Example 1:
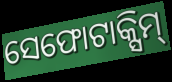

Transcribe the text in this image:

ସେଫୋଟାକ୍ସିମ୍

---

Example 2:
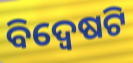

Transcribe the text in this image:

ବିଦ୍ୱେଷଟି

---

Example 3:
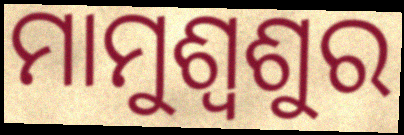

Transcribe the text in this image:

ମାମୁଶ୍ବଶୁର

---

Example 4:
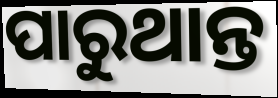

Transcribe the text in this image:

ପାରୁଥାନ୍ତ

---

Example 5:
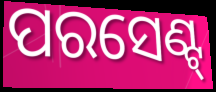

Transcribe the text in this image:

ପରସେଣ୍ଟ୍